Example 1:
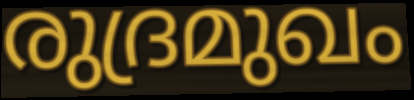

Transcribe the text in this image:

രുദ്രമുഖം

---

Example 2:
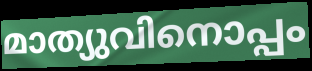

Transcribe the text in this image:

മാത്യുവിനൊപ്പം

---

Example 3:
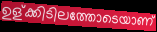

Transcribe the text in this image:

ഉള്ക്കിടിലത്തോടെയാണ്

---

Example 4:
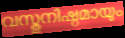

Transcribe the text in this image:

വസ്തുനിഷ്ഠമായും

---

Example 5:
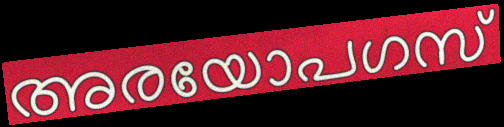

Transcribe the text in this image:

അരയോപഗസ്